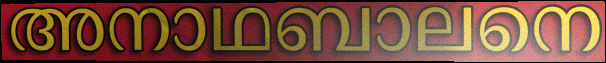
അനാഥബാലനെ